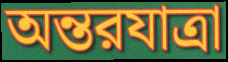
অন্তরযাত্রা